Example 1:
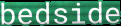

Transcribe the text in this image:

bedside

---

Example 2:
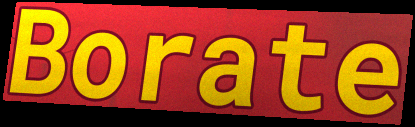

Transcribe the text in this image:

Borate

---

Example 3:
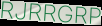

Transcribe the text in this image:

RJRRGRP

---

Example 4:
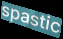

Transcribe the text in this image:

spastic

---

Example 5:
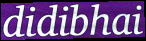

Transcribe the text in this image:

didibhai